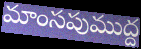
మాంసపుముద్ద